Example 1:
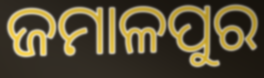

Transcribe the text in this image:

ଜମାଳପୁର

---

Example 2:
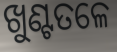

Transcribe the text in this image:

ଖୁଣ୍ଟତଳେ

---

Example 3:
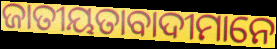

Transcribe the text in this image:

ଜାତୀୟତାବାଦୀମାନେ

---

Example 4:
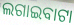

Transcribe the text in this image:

ଲଗାଇବାଟା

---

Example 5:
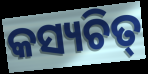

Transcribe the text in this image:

କସ୍ୟଚିତ୍